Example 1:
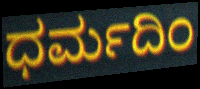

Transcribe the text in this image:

ಧರ್ಮದಿಂ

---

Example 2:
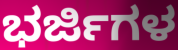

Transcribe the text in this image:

ಭರ್ಜಿಗಳ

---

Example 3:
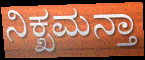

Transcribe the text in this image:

ನಿಕ್ಖಮನ್ತಾ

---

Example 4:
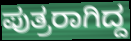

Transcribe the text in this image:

ಪುತ್ರರಾಗಿದ್ದ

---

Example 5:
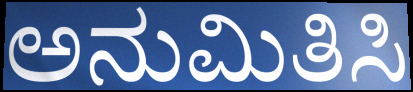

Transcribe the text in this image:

ಅನುಮಿತಿಸಿ